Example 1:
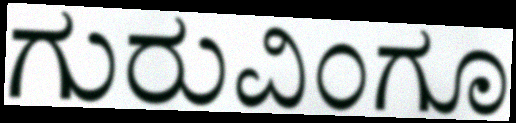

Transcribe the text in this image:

ಗುರುವಿಂಗೂ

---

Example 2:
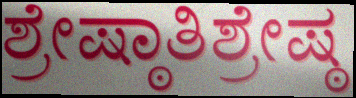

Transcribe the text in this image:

ಶ್ರೇಷ್ಠಾತಿಶ್ರೇಷ್ಠ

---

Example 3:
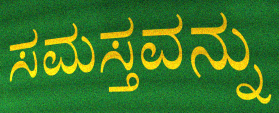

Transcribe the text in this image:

ಸಮಸ್ತವನ್ನು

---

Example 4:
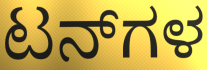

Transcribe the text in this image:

ಟನ್‌ಗಳ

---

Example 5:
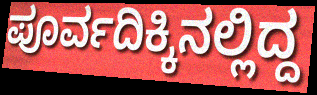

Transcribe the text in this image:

ಪೂರ್ವದಿಕ್ಕಿನಲ್ಲಿದ್ದ